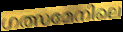
ഗത്സമേനിലെ